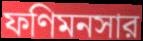
ফণিমনসার